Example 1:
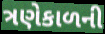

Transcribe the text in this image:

ત્રણેકાળની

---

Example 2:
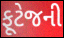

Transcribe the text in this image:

ફૂટેજની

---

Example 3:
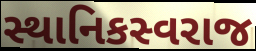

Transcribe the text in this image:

સ્થાનિકસ્વરાજ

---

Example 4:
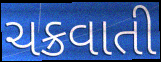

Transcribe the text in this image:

ચક્રવાતી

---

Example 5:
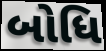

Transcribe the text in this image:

બોધિ